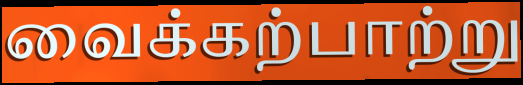
வைக்கற்பாற்று